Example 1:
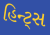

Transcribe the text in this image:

હિન્ટ્સ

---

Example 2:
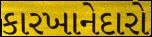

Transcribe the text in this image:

કારખાનેદારો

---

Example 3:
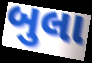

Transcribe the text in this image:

બુલા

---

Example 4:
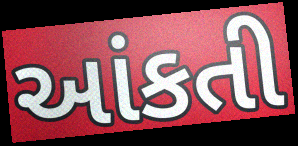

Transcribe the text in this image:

આંકતી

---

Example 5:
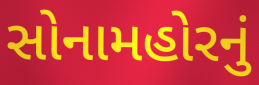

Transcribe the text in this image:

સોનામહોરનું